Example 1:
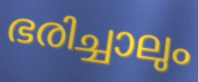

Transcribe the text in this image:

ഭരിച്ചാലും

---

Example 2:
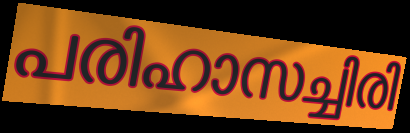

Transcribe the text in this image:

പരിഹാസച്ചിരി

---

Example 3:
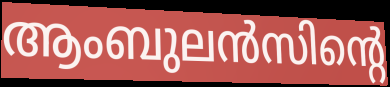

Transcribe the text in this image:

ആംബുലൻസിന്റെ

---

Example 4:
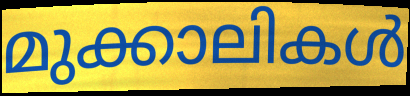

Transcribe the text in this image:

മുക്കാലികൾ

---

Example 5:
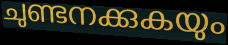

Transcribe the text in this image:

ചുണ്ടനക്കുകയും